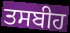
ਤਸਬੀਹ